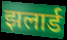
झलार्ड